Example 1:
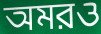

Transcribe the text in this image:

অমরও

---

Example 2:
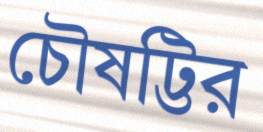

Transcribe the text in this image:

চৌষট্টির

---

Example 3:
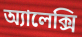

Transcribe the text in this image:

অ্যালেক্সি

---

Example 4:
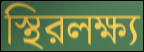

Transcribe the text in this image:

স্থিরলক্ষ্য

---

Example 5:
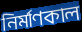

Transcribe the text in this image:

নির্মাণকাল